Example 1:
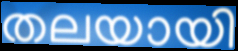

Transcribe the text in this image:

തലയായി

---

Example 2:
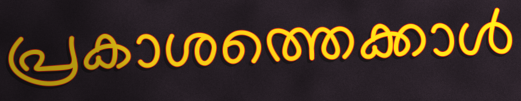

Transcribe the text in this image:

പ്രകാശത്തെക്കാൾ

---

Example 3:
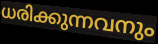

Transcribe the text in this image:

ധരിക്കുന്നവനും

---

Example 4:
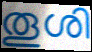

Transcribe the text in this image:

തൂശി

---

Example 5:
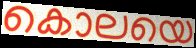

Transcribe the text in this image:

കൊലയെ